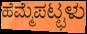
ಹೆಮ್ಮೆಪಟ್ಟಳು